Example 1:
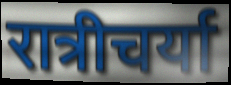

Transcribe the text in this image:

रात्रीचर्या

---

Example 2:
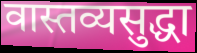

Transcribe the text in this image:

वास्तव्यसुद्धा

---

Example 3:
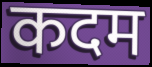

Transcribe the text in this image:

कदम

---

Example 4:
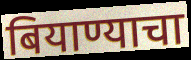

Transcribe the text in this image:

बियाण्याचा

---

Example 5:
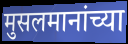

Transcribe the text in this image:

मुसलमानांच्या